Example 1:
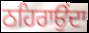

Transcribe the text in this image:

ਠਹਿਰਾਉਂਦਾ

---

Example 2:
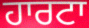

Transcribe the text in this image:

ਹਾਰਟਾ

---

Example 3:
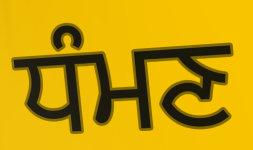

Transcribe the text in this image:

ਧੰਮਣ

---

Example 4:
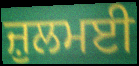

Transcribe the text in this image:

ਜ਼ੁਲਮਈ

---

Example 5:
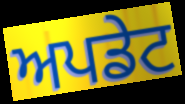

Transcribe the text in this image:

ਅਪਡੇਟ